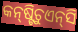
କନ୍‍ଷ୍ଟିଚୁଏନ୍‍ସି